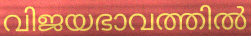
വിജയഭാവത്തിൽ